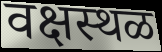
वक्षस्थळ